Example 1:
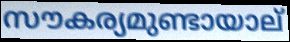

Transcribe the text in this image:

സൗകര്യമുണ്ടായാല്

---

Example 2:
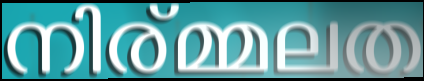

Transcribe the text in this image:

നിര്മ്മലത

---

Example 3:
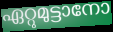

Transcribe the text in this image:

ഏറ്റുമുട്ടാനോ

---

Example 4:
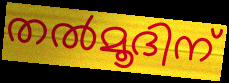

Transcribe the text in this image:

തൽമൂദിന്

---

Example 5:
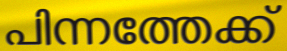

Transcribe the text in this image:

പിന്നത്തേക്ക്